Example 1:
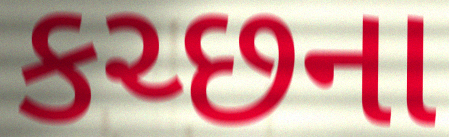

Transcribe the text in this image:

કચ્છના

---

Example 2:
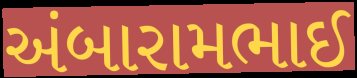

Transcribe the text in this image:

અંબારામભાઈ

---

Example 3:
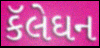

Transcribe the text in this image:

કૅલેઘન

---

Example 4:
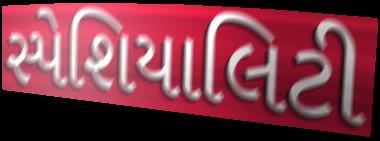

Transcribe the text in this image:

સ્પેશિયાલિટી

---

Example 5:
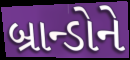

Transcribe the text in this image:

બ્રાન્ડોને